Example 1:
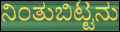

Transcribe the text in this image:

ನಿಂತುಬಿಟ್ಟನು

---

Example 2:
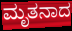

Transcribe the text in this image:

ಮೃತನಾದ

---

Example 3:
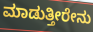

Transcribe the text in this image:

ಮಾಡುತ್ತೀರೇನು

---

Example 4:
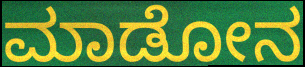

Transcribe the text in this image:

ಮಾಡೋನ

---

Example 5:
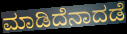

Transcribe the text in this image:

ಮಾಡಿದೆನಾದಡೆ